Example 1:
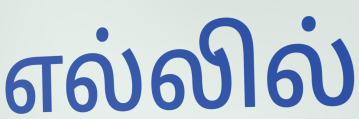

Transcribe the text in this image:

எல்லில்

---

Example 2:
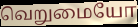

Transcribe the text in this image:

வெறுமையோ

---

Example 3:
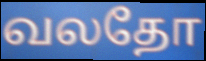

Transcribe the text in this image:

வலதோ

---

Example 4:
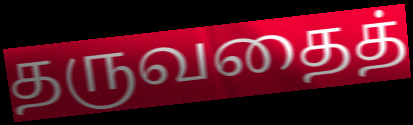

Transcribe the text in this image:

தருவதைத்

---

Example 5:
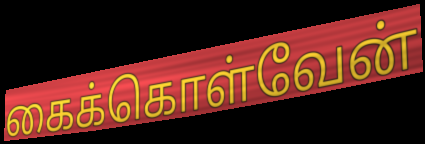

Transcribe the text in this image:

கைக்கொள்வேன்